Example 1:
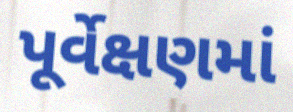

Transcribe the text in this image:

પૂર્વેક્ષણમાં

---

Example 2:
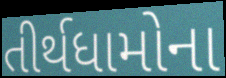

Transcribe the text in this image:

તીર્થધામોના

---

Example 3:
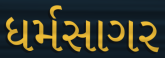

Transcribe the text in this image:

ધર્મસાગર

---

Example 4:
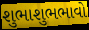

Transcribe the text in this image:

શુભાશુભભાવો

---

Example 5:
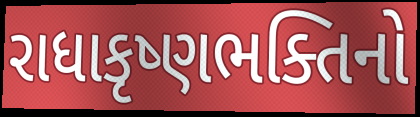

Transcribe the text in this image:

રાધાકૃષ્ણભક્તિનો